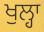
ਖੁਲ੍ਹਾ